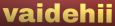
vaidehii